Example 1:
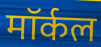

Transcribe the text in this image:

मॉर्कल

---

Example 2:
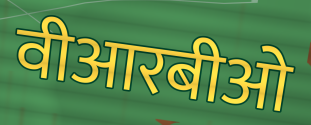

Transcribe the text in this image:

वीआरबीओ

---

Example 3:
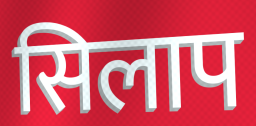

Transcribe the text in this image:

सिलाप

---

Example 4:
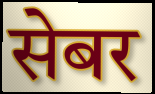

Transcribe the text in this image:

सेबर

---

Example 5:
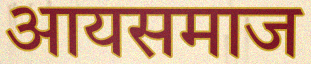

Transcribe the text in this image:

आयसमाज